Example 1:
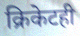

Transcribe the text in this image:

क्रिकेटही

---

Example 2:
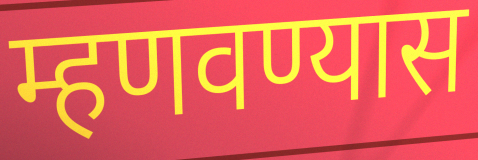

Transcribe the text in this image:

म्हणवण्यास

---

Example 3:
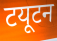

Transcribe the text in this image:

टयूटन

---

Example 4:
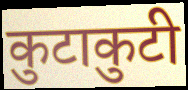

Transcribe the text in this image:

कुटाकुटी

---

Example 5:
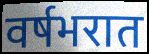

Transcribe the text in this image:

वर्षभरात